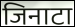
जिनाटा